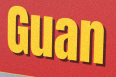
Guan